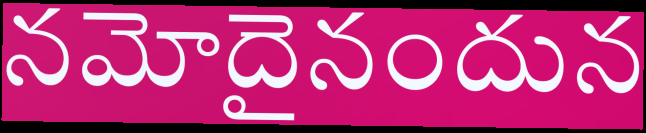
నమోదైనందున